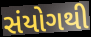
સંયોગથી